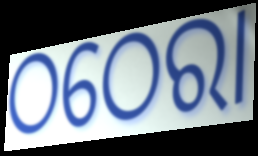
ଠଠେରା